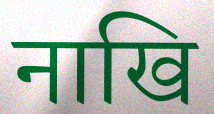
नाखि